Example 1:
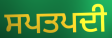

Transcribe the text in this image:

ਸਪਤਪਦੀ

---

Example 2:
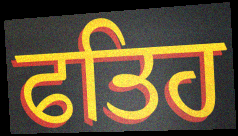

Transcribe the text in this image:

ਫਤਿਹ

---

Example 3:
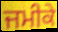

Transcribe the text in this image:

ਜਮੀਕੇ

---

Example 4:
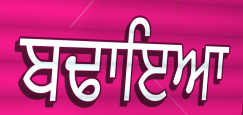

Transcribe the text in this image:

ਬਢਾਇਆ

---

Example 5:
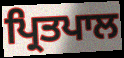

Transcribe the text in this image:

ਪ੍ਰਿਤਪਾਲ